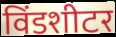
विंडशीटर